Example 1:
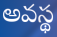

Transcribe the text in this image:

అవస్థ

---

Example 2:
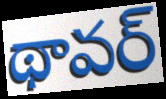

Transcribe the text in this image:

థావర్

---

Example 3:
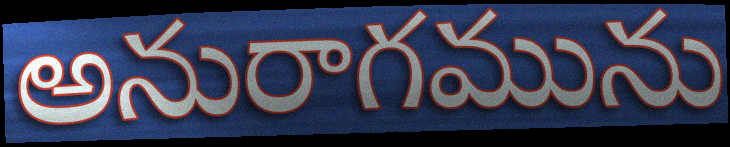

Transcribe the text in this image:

అనురాగమును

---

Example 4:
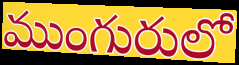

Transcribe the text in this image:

ముంగురులో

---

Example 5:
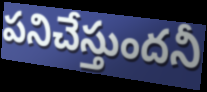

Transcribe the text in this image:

పనిచేస్తుందనీ